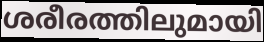
ശരീരത്തിലുമായി